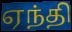
ஏந்தி